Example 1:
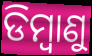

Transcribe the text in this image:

ଡିମ୍ୱାଣୁ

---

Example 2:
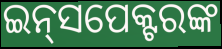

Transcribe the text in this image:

ଇନ୍‍ସପେକ୍ଟରଙ୍କ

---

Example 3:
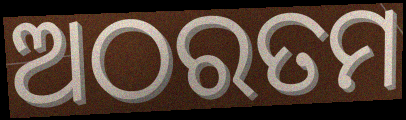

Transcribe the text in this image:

ଅଠରତମ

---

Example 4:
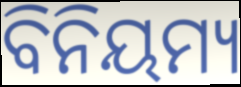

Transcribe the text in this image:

ବିନିୟମ୍ୟ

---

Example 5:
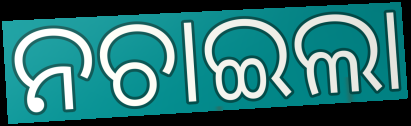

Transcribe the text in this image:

ନଚାଇଲା